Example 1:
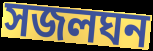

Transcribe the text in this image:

সজলঘন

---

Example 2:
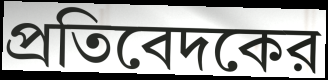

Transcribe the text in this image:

প্রতিবেদকের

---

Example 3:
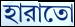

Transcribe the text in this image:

হারাতো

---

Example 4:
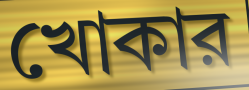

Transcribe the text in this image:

খোকার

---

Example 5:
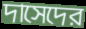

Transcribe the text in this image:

দাসেদের